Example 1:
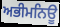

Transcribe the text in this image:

ਅਭੀਮਨਿਊ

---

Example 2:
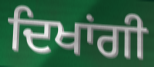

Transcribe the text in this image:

ਦਿਖਾਂਗੀ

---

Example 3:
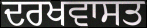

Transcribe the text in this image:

ਦਰਖਵਾਸਤ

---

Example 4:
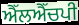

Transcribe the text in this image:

ਐੱਲਐੱਚਪੀ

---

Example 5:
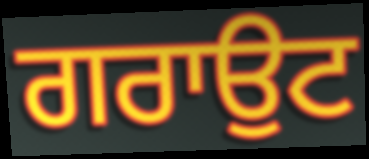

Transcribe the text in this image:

ਗਰਾਉਟ